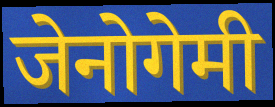
जेनोगेमी